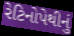
રેટિનોપેથીનું